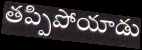
తప్పిపోయాడు